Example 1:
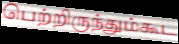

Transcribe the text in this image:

பெற்றிருந்தும்கூட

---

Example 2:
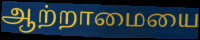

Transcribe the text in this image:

ஆற்றாமையை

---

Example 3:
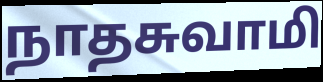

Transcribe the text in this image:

நாதசுவாமி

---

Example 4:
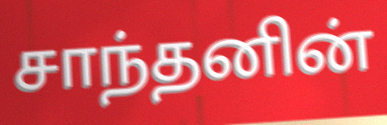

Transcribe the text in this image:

சாந்தனின்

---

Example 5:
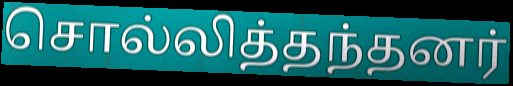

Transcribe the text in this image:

சொல்லித்தந்தனர்